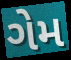
ગેમ